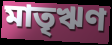
মাতৃঋণ